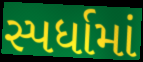
સ્પર્ધામાં